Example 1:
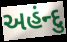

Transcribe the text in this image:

અહંન્દુ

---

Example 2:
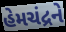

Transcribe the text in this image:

હેમચંદ્રને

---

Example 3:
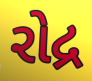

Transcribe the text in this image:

રોદ્ર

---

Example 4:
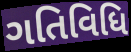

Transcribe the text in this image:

ગતિવિધિ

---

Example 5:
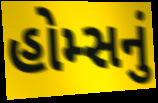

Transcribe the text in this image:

હોમ્સનું